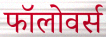
फॉलोवर्स